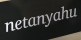
netanyahu